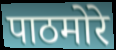
पाठमोरे